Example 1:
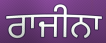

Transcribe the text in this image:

ਰਾਜੀਨਾ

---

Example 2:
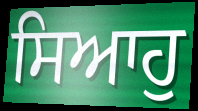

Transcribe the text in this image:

ਸਿਆਹੁ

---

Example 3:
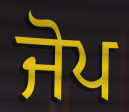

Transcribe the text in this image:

ਜੋਪ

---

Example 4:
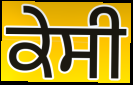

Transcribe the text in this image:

ਕੇਸੀ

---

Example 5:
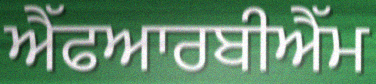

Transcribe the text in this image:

ਐੱਫਆਰਬੀਐੱਮ